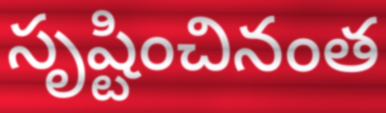
సృష్టించినంత